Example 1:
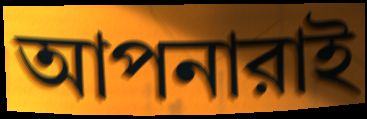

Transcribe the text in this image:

আপনারাই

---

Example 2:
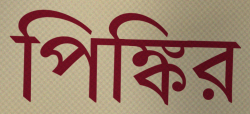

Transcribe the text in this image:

পিঙ্কির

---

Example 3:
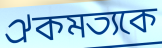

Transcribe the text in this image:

ঐকমত্যকে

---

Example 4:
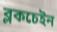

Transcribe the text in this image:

ব্লকচেইন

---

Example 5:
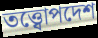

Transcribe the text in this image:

তত্ত্বোপদেশ